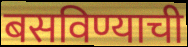
बसविण्याची